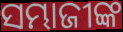
ସମ୍ଭାଜୀଙ୍କ